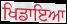
ਖਿਡਾਇਆ